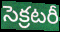
సెక్రటరీ